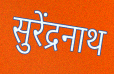
सुरेंद्रनाथ